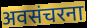
अवसंचरना